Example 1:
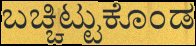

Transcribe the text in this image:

ಬಚ್ಚಿಟ್ಟುಕೊಂಡ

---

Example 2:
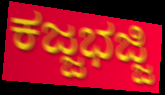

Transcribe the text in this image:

ಕಜ್ಜಭಜ್ಜಿ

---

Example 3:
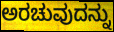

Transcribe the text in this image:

ಅರಚುವುದನ್ನು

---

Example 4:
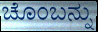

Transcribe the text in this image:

ಚೊಂಬನ್ನು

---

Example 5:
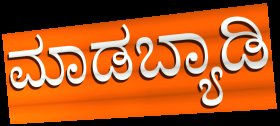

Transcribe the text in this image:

ಮಾಡಬ್ಯಾಡಿ